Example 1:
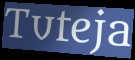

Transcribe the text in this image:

Tuteja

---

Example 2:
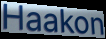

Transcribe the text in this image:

Haakon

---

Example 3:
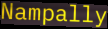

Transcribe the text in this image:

Nampally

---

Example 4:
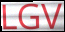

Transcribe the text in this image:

LGV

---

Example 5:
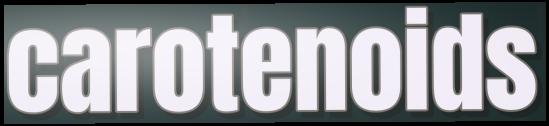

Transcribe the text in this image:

carotenoids